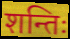
शन्तिः